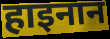
हाइनान